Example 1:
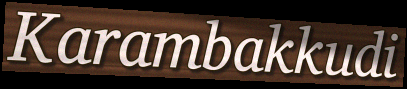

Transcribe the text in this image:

Karambakkudi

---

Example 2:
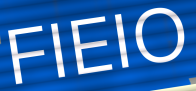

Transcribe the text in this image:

FIEIO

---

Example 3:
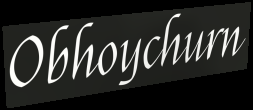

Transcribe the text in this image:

Obhoychurn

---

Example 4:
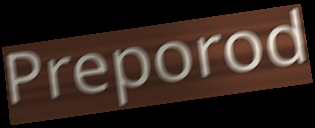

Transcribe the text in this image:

Preporod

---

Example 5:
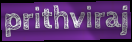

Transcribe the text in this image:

prithviraj